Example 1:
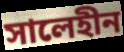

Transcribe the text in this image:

সালেহীন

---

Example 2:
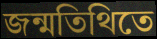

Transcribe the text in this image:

জন্মতিথিতে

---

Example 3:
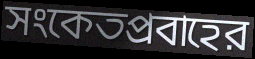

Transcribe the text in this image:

সংকেতপ্রবাহের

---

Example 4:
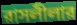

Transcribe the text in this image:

রাসলীলার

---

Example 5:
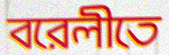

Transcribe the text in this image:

বরেলীতে